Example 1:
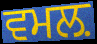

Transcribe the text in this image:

ਵਮਲ਼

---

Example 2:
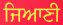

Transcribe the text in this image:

ਜਿਆਣੀ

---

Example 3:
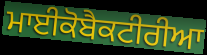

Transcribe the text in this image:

ਮਾਈਕੋਬੈਕਟੀਰੀਆ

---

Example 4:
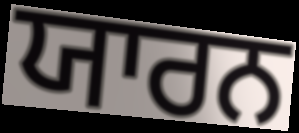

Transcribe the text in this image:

ਯਾਰਨ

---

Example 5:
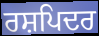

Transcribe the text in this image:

ਰਸ਼ਪਿਦਰ